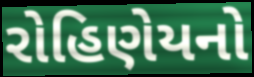
રોહિણેયનો